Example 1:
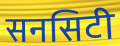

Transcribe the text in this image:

सनसिटी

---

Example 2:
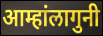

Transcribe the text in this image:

आम्हांलागुनी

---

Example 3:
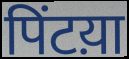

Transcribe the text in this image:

पिंटय़ा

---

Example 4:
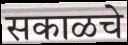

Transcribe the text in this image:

सकाळचे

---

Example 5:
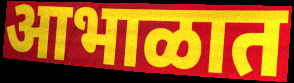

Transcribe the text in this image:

आभाळात